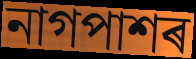
নাগপাশৰ